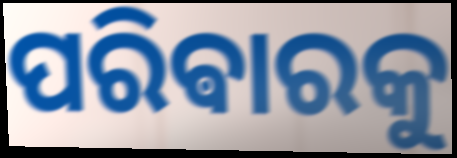
ପରିଵାରକୁ